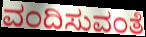
ವಂದಿಸುವಂತೆ